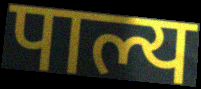
पाल्य